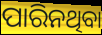
ପାରିନଥିବା